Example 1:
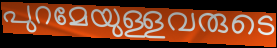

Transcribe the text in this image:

പുറമേയുള്ളവരുടെ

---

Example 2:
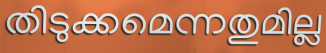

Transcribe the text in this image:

തിടുക്കമെന്നതുമില്ല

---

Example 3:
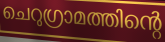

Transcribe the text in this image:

ചെറുഗ്രാമത്തിന്റെ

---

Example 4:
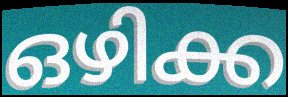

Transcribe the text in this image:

ഒഴിക്ക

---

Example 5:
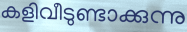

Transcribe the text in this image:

കളിവീടുണ്ടാക്കുന്നു